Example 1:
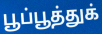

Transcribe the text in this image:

பூப்பூத்துக்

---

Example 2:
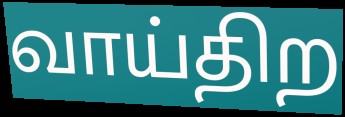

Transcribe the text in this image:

வாய்திற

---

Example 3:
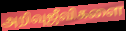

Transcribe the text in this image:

அறிவுஜீவிகளை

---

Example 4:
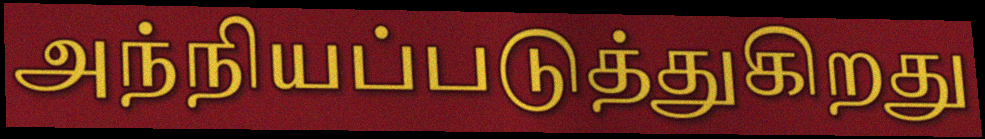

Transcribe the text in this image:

அந்நியப்படுத்துகிறது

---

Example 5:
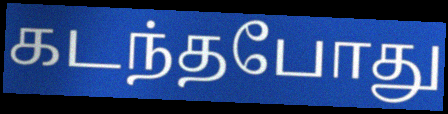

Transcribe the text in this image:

கடந்தபோது